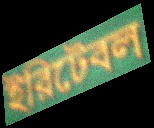
ইরিটেবল